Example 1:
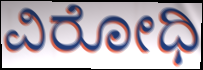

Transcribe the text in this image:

ವಿರೋಧಿ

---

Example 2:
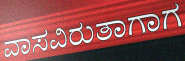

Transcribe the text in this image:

ವಾಸವಿರುತಾಗಾಗ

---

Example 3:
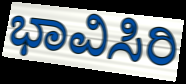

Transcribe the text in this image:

ಭಾವಿಸಿರಿ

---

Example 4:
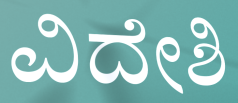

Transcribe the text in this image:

ವಿದೇಶಿ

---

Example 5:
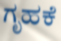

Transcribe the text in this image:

ಗೃಹಕೆ